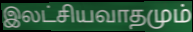
இலட்சியவாதமும்